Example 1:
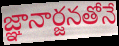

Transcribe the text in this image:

జ్ఞానార్జనతోనే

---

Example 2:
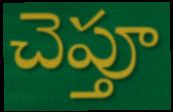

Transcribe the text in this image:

చెప్తూ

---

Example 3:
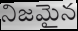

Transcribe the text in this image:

నిజమైన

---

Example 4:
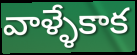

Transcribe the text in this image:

వాళ్ళేకాక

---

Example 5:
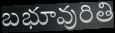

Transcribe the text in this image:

బభూవురితి